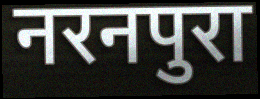
नरनपुरा